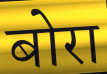
बोरा